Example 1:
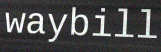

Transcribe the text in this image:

waybill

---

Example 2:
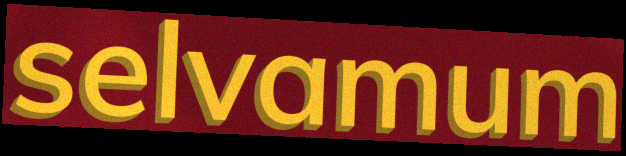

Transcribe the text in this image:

selvamum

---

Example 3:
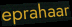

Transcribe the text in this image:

eprahaar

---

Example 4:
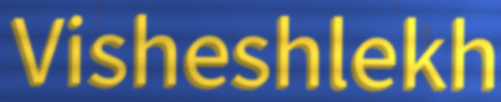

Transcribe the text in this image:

Visheshlekh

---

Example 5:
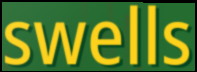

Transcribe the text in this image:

swells